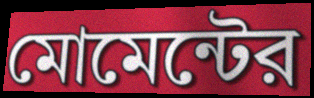
মোমেন্টের